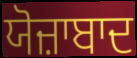
ਯੋਜ਼ਾਬਾਦ